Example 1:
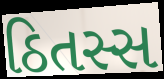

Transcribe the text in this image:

ઠિતસ્સ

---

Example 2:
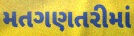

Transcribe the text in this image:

મતગણતરીમાં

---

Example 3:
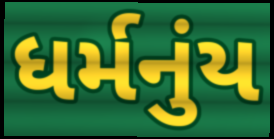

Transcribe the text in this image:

ધર્મનુંય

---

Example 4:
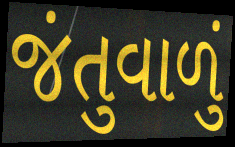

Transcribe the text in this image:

જંતુવાળું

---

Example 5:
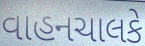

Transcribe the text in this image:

વાહનચાલકે